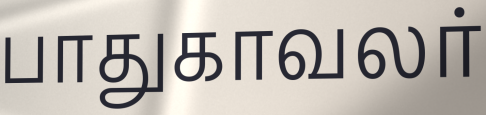
பாதுகாவலர்